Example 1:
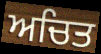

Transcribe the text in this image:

ਅਚਿਤ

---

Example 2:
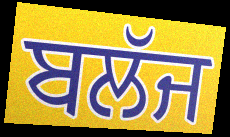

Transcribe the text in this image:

ਬਲੱਜ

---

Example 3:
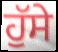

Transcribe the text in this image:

ਹੁੱਸੇ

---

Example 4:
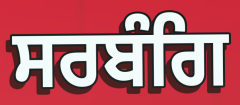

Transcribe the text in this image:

ਸਰਬੰਗਿ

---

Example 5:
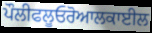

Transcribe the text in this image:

ਪੌਲੀਫਲੂਓਰੋਆਲਕਾਈਲ